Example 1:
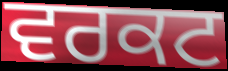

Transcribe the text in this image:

ਵਰਕਟ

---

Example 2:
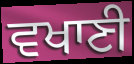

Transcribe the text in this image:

ਵਖਾਣੀ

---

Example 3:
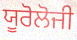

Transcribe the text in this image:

ਯੂਰੋਲੋਜੀ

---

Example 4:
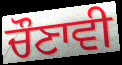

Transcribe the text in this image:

ਚੌਣਾਵੀ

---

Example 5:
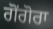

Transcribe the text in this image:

ਗੋਂਗੋਰਾ